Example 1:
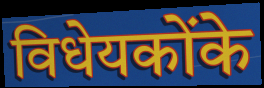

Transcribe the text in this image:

विधेयकोंके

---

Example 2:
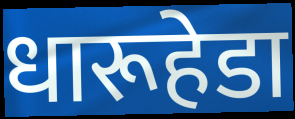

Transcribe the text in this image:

धारूहेडा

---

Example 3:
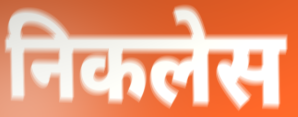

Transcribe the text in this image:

निकलेस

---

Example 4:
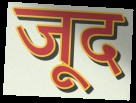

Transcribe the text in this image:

जूद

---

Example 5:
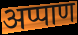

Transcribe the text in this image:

अप्पाण